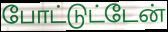
போட்டுட்டேன்